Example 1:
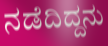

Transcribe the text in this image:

ನಡೆದಿದ್ದನು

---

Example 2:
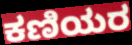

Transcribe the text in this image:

ಕಣಿಯರ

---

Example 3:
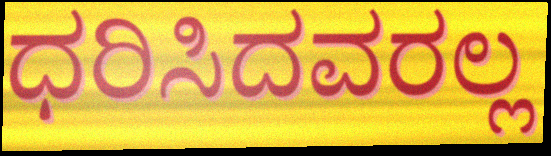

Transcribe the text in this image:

ಧರಿಸಿದವರಲ್ಲ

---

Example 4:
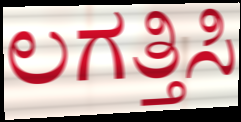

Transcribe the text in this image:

ಲಗತ್ತಿಸಿ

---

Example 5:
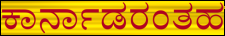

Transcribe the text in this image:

ಕಾರ್ನಾಡರಂತಹ